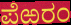
ಪೆಱರಂ